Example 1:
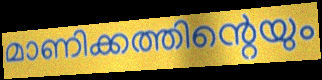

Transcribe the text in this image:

മാണിക്കത്തിന്റെയും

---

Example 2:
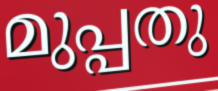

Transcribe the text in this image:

മുപ്പതു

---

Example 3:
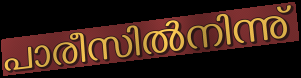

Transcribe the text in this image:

പാരീസിൽനിന്നു്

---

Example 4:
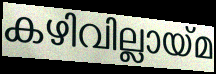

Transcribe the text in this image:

കഴിവില്ലായ്മ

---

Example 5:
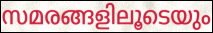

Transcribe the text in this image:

സമരങ്ങളിലൂടെയും